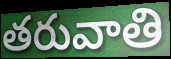
తరువాతి